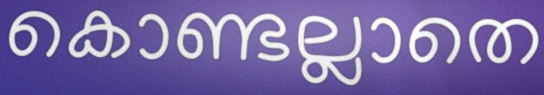
കൊണ്ടല്ലാതെ